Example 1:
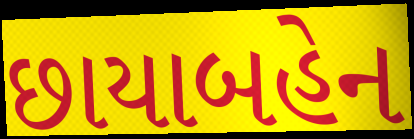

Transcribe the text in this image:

છાયાબહેન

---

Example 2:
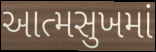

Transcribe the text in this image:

આત્મસુખમાં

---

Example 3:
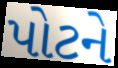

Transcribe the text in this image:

પોટને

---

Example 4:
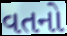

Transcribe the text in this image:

વતનો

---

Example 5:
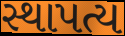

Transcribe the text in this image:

સ્થાપત્ય